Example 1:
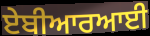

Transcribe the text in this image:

ਏਬੀਆਰਆਈ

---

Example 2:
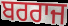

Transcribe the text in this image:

ਬਰਰਾਜ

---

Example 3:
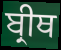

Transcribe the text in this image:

ਬ੍ਰੀਥ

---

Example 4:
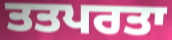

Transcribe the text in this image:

ਤਤਪਰਤਾ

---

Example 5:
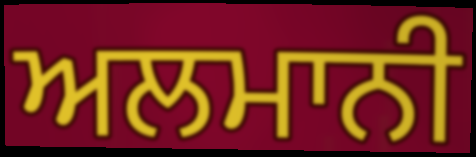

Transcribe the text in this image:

ਅਲਮਾਨੀ